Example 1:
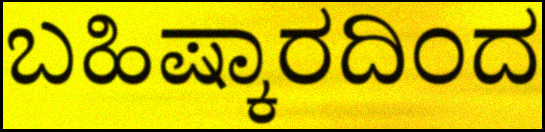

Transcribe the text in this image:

ಬಹಿಷ್ಕಾರದಿಂದ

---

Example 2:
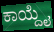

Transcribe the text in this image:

ಕಾಯ್ದೈ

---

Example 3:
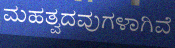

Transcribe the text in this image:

ಮಹತ್ವದವುಗಳಾಗಿವೆ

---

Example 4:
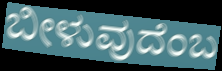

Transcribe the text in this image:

ಬೀಳುವುದೆಂಬ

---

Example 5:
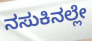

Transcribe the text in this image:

ನಸುಕಿನಲ್ಲೇ